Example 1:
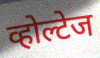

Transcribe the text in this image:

व्होल्टेज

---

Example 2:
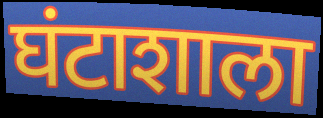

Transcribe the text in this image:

घंटाशाला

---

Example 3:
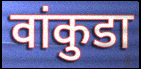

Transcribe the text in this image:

वांकुडा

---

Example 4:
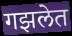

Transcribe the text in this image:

गझलेत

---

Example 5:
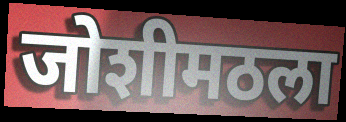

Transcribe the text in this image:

जोशीमठला